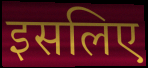
इसलिए